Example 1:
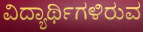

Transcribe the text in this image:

ವಿದ್ಯಾರ್ಥಿಗಳಿರುವ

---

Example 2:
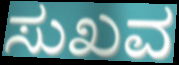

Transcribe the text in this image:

ಸುಖವ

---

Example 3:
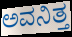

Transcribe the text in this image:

ಅವನಿತ್ತ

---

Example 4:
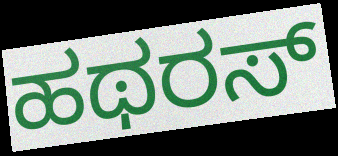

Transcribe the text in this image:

ಹಥರಸ್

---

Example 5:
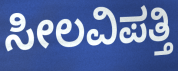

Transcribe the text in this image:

ಸೀಲವಿಪತ್ತಿ